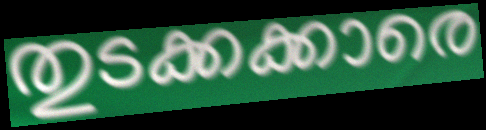
തുടക്കക്കാരെ